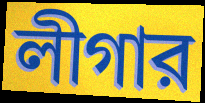
লীগার